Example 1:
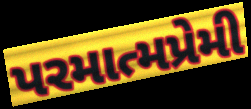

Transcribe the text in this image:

પરમાત્મપ્રેમી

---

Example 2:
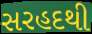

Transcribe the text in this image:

સરહદથી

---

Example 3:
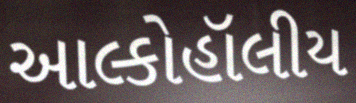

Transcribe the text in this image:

આલ્કોહૉલીય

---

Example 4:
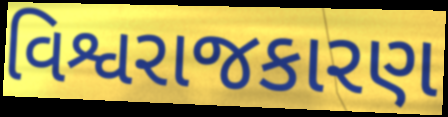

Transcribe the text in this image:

વિશ્વરાજકારણ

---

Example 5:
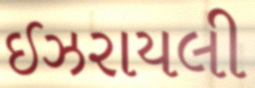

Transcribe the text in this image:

ઈઝરાયલી